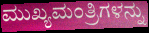
ಮುಖ್ಯಮಂತ್ರಿಗಳನ್ನು